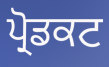
ਪ੍ਰੋਡਕਟ